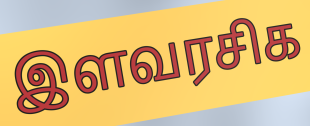
இளவரசிக